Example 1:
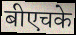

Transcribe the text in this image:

बीएचके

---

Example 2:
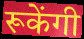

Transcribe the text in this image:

रूकेंगी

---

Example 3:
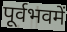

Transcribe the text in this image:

पूर्वभवमें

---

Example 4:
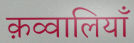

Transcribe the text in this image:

क़व्वालियाँ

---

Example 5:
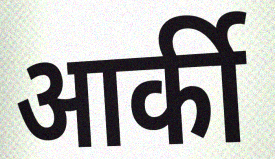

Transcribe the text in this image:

आर्की